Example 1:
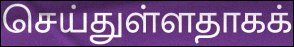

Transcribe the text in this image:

செய்துள்ளதாகக்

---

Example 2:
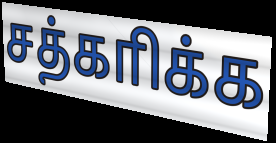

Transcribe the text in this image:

சத்கரிக்க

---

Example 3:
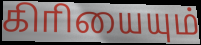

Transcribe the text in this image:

கிரியையும்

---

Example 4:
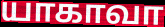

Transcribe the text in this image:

யாகாவா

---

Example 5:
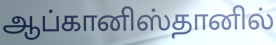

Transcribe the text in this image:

ஆப்கானிஸ்தானில்